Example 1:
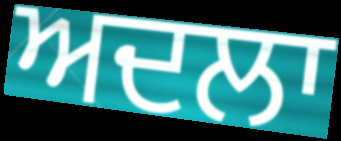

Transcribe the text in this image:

ਅਦਲਾ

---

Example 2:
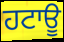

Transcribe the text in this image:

ਹਟਾਊ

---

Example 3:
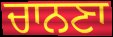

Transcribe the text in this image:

ਚਾਨਣਾ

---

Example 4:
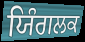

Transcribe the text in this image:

ਯਿੰਗਲਕ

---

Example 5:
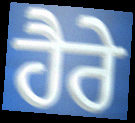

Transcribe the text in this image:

ਹੈਰੇ